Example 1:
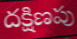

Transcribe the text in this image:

దక్షిణపు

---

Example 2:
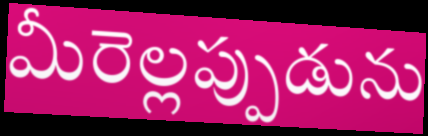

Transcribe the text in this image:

మీరెల్లప్పుడును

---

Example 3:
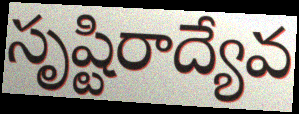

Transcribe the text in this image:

సృష్టిరాద్యేవ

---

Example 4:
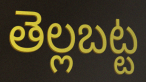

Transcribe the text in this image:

తెల్లబట్ట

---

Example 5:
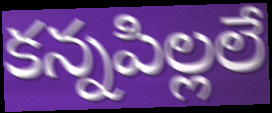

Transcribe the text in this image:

కన్నపిల్లలే